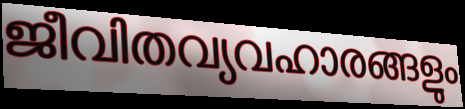
ജീവിതവ്യവഹാരങ്ങളും